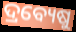
ଦ୍ରବ୍ୟେଷୁ